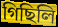
গিছিলি